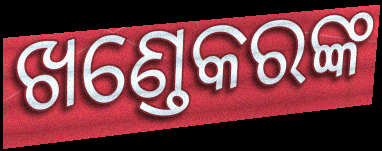
ଖଣ୍ଡେକରଙ୍କ